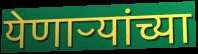
येणाऱ्यांच्या